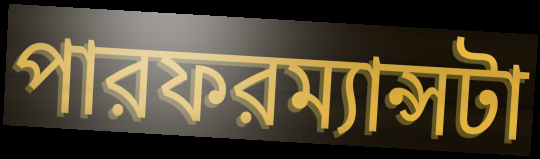
পারফরম্যান্সটা